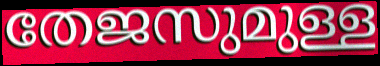
തേജസുമുള്ള